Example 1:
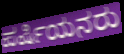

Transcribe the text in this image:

ಪರ್ಷಿಯನರು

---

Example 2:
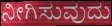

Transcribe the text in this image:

ನೀಗಿಸುವುದು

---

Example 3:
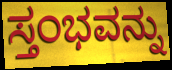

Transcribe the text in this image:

ಸ್ತಂಭವನ್ನು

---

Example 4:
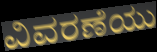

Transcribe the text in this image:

ವಿವರಣೆಯು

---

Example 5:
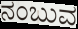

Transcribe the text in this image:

ನಂಬುವ